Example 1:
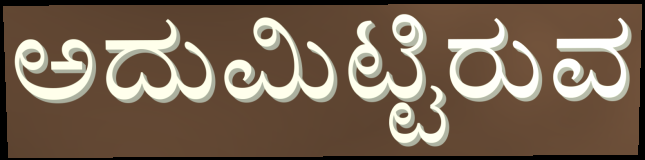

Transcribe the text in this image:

ಅದುಮಿಟ್ಟಿರುವ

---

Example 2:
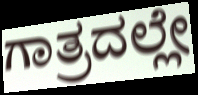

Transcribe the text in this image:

ಗಾತ್ರದಲ್ಲೇ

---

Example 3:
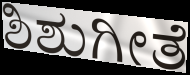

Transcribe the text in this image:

ಶಿಶುಗೀತೆ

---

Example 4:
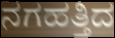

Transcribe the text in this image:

ನಗಹತ್ತಿದ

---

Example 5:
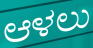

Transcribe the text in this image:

ಆಳಲು